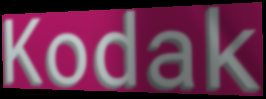
Kodak